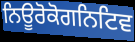
ਨਿਊਰੋਕੋਗਨਿਟਿਵ